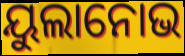
ୟୁଲାନୋଭ